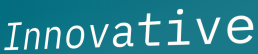
Innovative